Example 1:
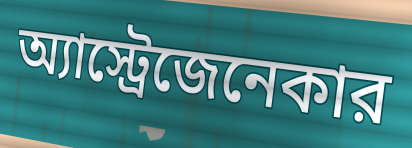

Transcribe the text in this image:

অ্যাস্ট্রেজেনেকার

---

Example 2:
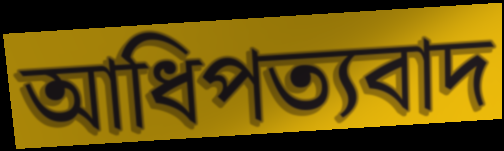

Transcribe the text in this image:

আধিপত্যবাদ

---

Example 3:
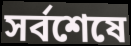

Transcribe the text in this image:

সর্বশেষে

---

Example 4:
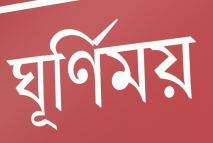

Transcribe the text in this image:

ঘূর্ণিময়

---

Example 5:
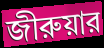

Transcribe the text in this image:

জীরুয়ার